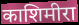
काशिमीरा